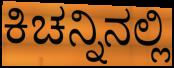
ಕಿಚನ್ನಿನಲ್ಲಿ